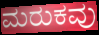
ಮರುಕವು